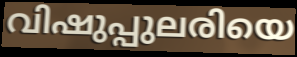
വിഷുപ്പുലരിയെ